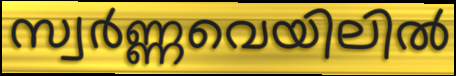
സ്വർണ്ണവെയിലിൽ